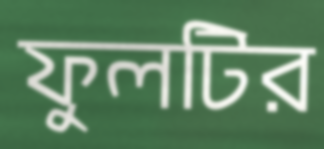
ফুলটির